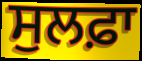
ਸੁਲਫ਼ਾ